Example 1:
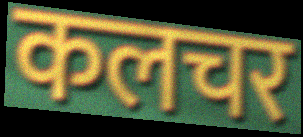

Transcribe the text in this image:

कलचर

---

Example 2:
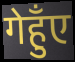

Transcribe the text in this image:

गेहुँए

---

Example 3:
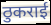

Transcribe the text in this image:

ठुकराई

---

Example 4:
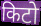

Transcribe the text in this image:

किटो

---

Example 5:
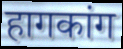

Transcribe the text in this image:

हागकांग